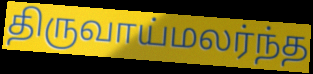
திருவாய்மலர்ந்த